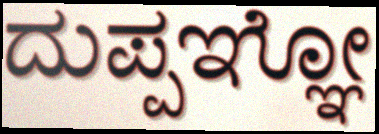
ದುಪ್ಪಞ್ಞೋ